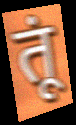
तूं